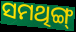
ସମଥିଙ୍ଗ୍